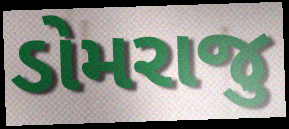
ડોમરાજુ